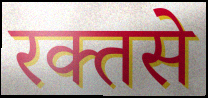
रक्तसे